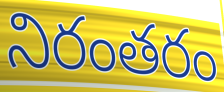
నిరంతరం